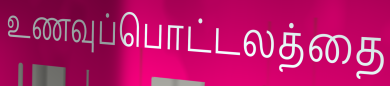
உணவுப்பொட்டலத்தை